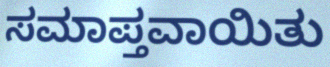
ಸಮಾಪ್ತವಾಯಿತು